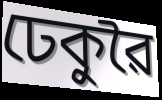
ঢেকুৱৈ